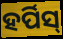
ହର୍ପିସ୍